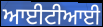
ਆਈਟੀਆਈ